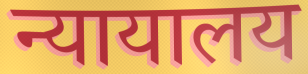
न्‍यायालय